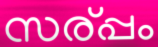
സര്പ്പം